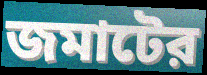
জমাটের